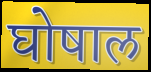
घोषाल